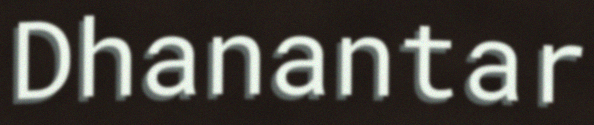
Dhanantar